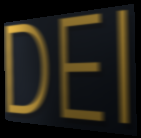
DEI